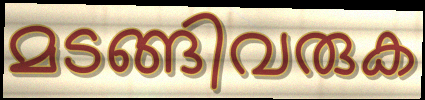
മടങ്ങിവരുക